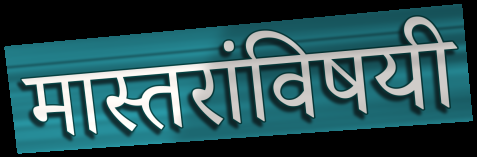
मास्तरांविषयी